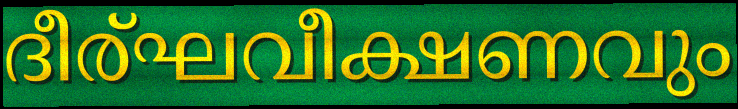
ദീര്ഘവീക്ഷണവും